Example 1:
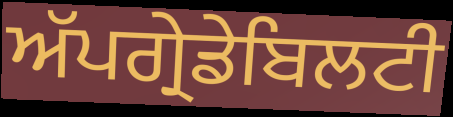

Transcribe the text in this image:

ਅੱਪਗ੍ਰੇਡੇਬਿਲਟੀ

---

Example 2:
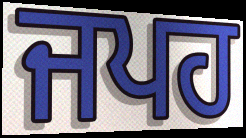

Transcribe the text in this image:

ਜਪਹ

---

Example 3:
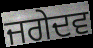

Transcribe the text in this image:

ਜਗੇਦਵ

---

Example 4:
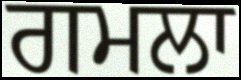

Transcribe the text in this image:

ਗਮਲਾ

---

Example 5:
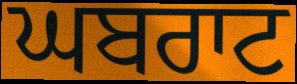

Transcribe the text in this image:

ਘਬਰਾਟ